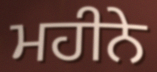
ਮਹੀਨੇ